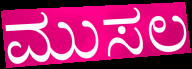
ಮುಸಲ